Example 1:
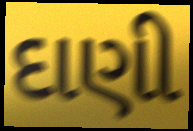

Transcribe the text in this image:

દાણી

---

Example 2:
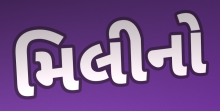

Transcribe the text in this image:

મિલીનો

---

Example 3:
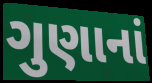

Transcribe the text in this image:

ગુણાનાં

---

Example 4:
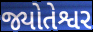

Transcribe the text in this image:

જ્યોતેશ્વર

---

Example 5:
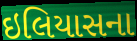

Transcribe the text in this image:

ઇલિયાસના